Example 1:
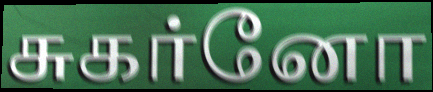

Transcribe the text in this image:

சுகர்னோ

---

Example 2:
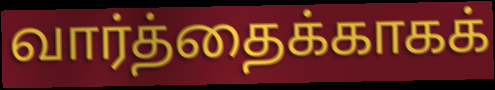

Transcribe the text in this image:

வார்த்தைக்காகக்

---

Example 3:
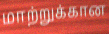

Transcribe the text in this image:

மாற்றுக்கான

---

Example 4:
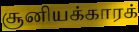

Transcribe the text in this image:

சூனியக்காரக்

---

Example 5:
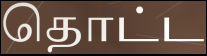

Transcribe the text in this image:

தொட்ட